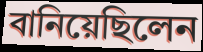
বানিয়েছিলেন